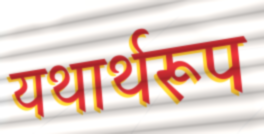
यथार्थरूप